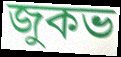
জুকভ